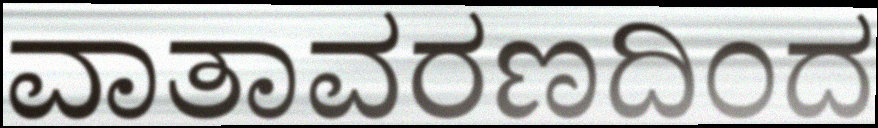
ವಾತಾವರಣದಿಂದ